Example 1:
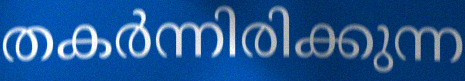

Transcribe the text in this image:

തകർന്നിരിക്കുന്ന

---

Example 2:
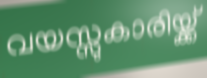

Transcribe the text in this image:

വയസ്സുകാരിയ്ക്ക്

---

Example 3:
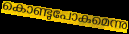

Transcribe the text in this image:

കൊണ്ടുപോകുമെന്നു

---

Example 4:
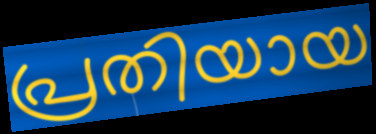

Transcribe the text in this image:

പ്രതിയായ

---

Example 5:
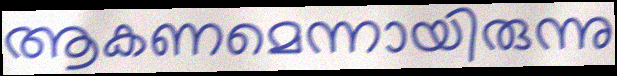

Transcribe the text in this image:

ആകണമെന്നായിരുന്നു